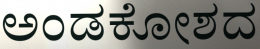
ಅಂಡಕೋಶದ